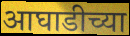
आघाडीच्‍या